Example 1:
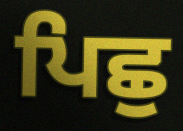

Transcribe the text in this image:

ਪਿਛੁ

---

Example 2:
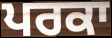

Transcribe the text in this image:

ਪਰਕਾ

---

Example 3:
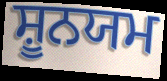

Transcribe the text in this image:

ਸ਼ੂਨਯਮ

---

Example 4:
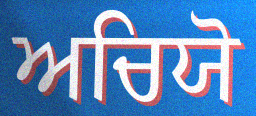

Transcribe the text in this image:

ਅਚਿਯੋ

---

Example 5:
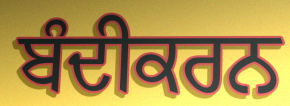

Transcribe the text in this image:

ਬੰਦੀਕਰਨ